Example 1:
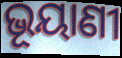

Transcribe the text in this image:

ଭୂୟାଣୀ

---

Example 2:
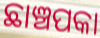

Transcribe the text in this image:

ଛାଞ୍ଚପକା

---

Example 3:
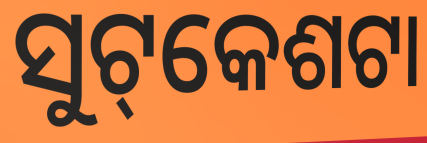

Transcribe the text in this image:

ସୁଟ୍‌କେଶଟା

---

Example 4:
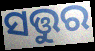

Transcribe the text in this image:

ସତ୍ତୁର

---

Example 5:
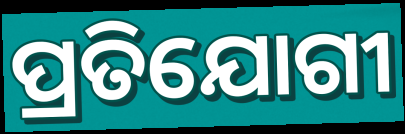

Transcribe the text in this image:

ପ୍ରତିଯୋଗୀ